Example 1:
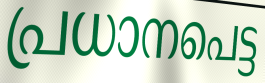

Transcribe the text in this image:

പ്രധാനപെട്ട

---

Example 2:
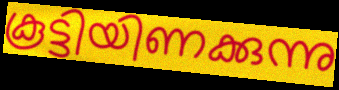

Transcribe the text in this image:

കൂട്ടിയിണക്കുന്നു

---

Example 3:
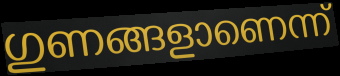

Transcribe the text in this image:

ഗുണങ്ങളാണെന്ന്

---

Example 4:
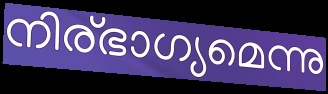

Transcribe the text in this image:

നിര്ഭാഗ്യമെന്നു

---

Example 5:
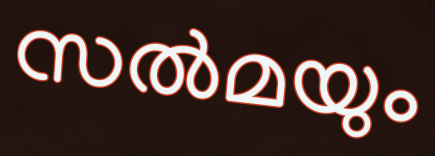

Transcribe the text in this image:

സൽമയും